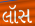
લૉસ